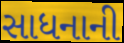
સાધનાની